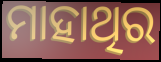
ମାହାଥିର